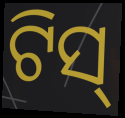
ଟିସ୍